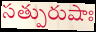
సత్పురుషాః